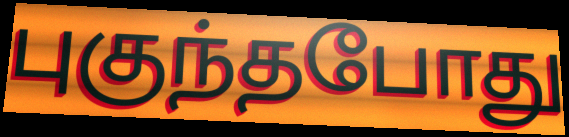
புகுந்தபோது